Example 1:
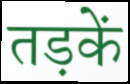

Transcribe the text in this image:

तड़कें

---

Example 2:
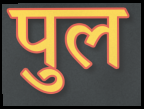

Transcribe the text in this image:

पुल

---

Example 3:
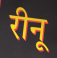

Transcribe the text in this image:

रीनू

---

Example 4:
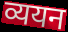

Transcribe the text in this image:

व्ययन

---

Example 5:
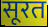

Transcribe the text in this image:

सूरत